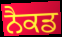
ਨੈਕਡ